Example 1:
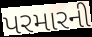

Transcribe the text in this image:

પરમારની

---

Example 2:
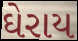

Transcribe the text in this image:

ઘેરાય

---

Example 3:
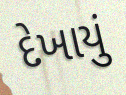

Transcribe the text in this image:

દેખાયું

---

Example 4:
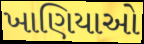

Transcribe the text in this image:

ખાણિયાઓ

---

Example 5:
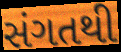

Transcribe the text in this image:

સંગતથી